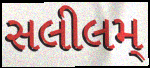
સલીલમ્